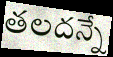
తలదన్నే